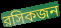
রসিকজন